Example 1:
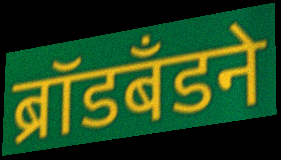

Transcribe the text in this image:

ब्रॉडबँडने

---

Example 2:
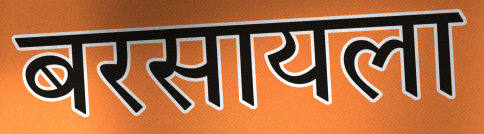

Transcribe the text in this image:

बरसायला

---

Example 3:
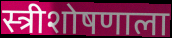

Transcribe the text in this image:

स्त्रीशोषणाला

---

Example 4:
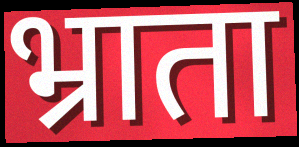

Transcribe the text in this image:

भ्राता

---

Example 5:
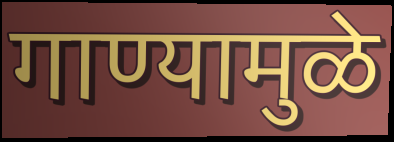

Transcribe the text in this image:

गाण्यामुळे